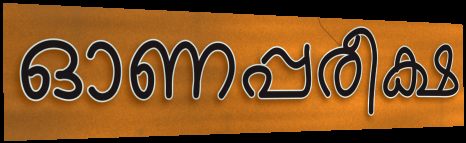
ഓണപ്പരീക്ഷ